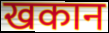
खकान